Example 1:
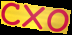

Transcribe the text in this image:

CXO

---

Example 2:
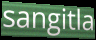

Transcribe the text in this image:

sangitla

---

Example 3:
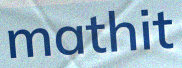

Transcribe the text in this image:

mathit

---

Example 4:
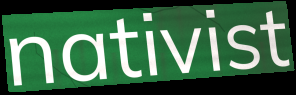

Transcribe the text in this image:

nativist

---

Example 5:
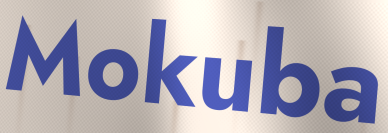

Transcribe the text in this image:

Mokuba